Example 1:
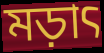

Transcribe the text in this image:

মড়াৎ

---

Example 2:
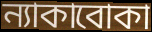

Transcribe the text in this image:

ন্যাকাবোকা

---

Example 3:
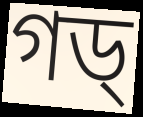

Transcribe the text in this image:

গড্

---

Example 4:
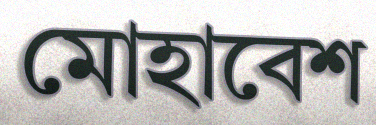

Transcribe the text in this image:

মোহাবেশ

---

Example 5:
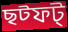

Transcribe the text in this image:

ছট্ফট্